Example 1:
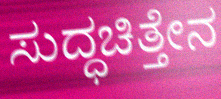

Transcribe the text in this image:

ಸುದ್ಧಚಿತ್ತೇನ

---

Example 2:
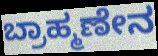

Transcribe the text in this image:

ಬ್ರಾಹ್ಮಣೇನ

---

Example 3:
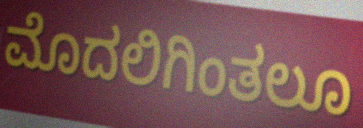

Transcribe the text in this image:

ಮೊದಲಿಗಿಂತಲೂ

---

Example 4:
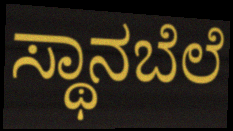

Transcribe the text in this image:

ಸ್ಥಾನಬೆಲೆ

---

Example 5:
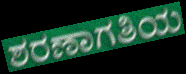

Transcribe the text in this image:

ಶರಣಾಗತಿಯ